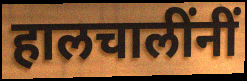
हालचालींनीं